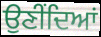
ਉਣੀਂਦਿਆਂ